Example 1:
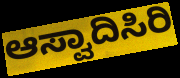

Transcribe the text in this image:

ಆಸ್ವಾದಿಸಿರಿ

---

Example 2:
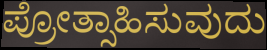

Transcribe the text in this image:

ಪ್ರೋತ್ಸಾಹಿಸುವುದು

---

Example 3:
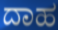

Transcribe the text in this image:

ದಾಹ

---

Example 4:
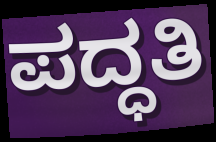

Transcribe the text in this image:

ಪದ್ಧತಿ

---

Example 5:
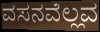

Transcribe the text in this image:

ವಸನವೆಲ್ಲವ